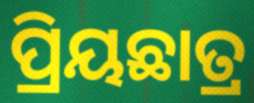
ପ୍ରିୟଛାତ୍ର